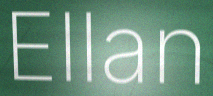
Ellan